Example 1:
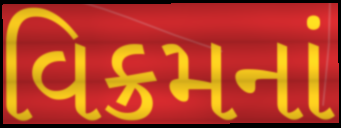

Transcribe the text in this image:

વિક્રમનાં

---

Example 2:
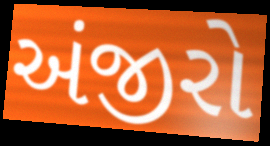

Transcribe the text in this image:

અંજીરો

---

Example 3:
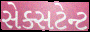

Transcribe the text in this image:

સેક્સટેન્ટ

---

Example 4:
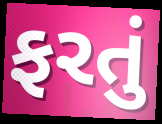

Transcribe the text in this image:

ફરતું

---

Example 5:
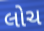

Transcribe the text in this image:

લોચ